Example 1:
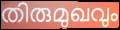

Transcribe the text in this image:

തിരുമുഖവും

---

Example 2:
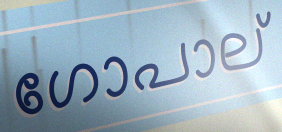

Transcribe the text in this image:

ഗോപാല്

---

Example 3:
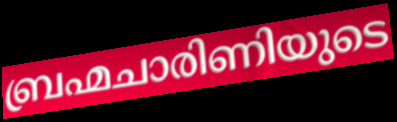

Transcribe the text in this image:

ബ്രഹ്മചാരിണിയുടെ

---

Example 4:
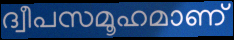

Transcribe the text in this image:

ദ്വീപസമൂഹമാണ്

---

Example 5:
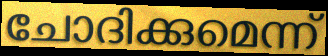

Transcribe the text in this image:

ചോദിക്കുമെന്ന്